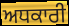
ਅਧਕਾਰੀ